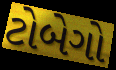
ટોબેગો